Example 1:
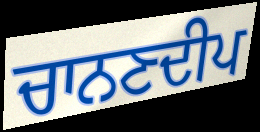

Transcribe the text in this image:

ਚਾਨਣਦੀਪ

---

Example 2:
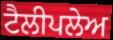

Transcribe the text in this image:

ਟੈਲੀਪਲੇਅ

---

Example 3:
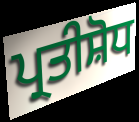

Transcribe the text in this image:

ਪ੍ਰਤੀਸ਼ੋਧ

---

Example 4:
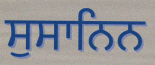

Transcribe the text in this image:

ਸੁਸਾਨਿਨ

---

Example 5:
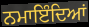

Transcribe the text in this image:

ਨਮਾਇੰਦਿਆਂ